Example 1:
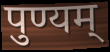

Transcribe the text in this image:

पुण्यम्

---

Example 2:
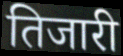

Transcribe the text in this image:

तिजारी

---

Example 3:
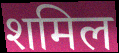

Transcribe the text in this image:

शमिल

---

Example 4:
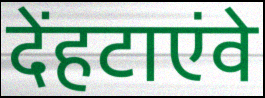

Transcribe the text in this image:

देंहटाएंवे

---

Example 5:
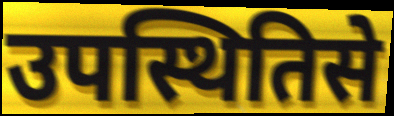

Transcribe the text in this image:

उपस्थितिसे